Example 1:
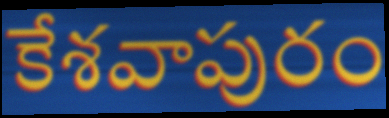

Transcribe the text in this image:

కేశవాపురం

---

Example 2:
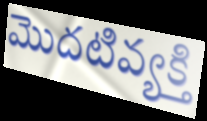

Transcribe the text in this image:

మొదటివ్యక్తి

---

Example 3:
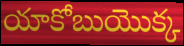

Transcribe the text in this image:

యాకోబుయొక్క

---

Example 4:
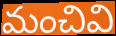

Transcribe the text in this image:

మంచివి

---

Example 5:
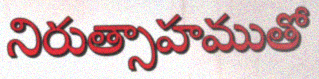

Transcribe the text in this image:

నిరుత్సాహముతో